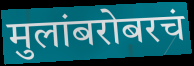
मुलांबरोबरचं